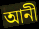
আনী